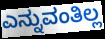
ಎನ್ನುವಂತಿಲ್ಲ